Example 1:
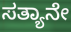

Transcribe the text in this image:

ಸತ್ಯಾನೇ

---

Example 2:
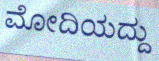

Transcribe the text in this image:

ಮೋದಿಯದ್ದು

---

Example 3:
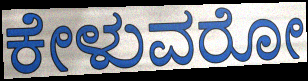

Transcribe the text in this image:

ಕೇಳುವರೋ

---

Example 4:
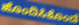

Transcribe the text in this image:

ಹೊಂದಿಸಿಕೊಂಡೆ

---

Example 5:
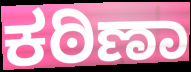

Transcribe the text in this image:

ಕಠಿಣಾ